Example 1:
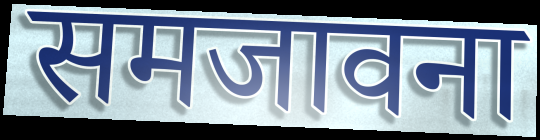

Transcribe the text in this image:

समजावना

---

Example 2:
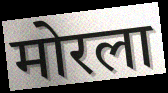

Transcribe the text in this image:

मोरला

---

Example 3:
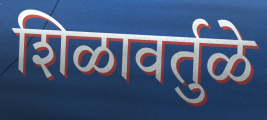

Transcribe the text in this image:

शिळावर्तुळे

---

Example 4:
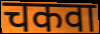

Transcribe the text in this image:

चकवा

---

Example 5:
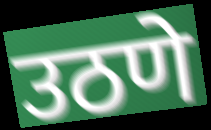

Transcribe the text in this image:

उठणे